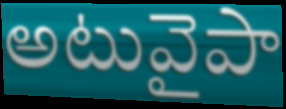
అటువైపా